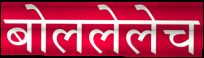
बोललेलेच